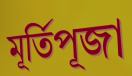
মূর্তিপূজা